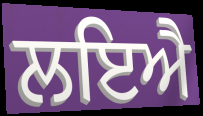
ਲਇਐ